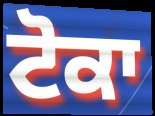
ਟੋਕਾ